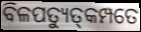
ବିଳପତ୍ୟୁତ୍‌କମ୍ପତେ